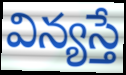
విన్యస్తే